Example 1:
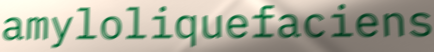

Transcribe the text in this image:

amyloliquefaciens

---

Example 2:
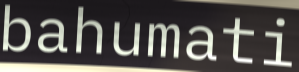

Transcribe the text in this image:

bahumati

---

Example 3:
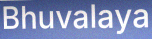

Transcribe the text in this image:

Bhuvalaya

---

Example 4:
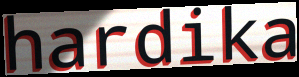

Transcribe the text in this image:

hardika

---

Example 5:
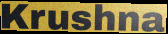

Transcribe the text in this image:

Krushna